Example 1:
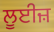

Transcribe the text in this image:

ਲੂਈਜ਼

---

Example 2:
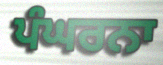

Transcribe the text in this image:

ਪੰਘਰਨਾ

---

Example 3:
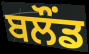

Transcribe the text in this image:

ਬਲੌਂਡ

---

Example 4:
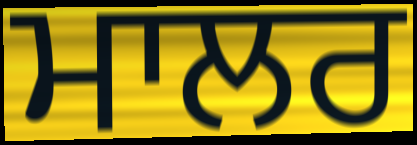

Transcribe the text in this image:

ਮਾਲਰ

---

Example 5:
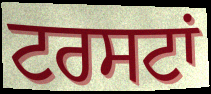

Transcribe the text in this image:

ਟਰਸਟਾਂ